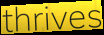
thrives